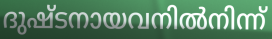
ദുഷ്ടനായവനിൽനിന്ന്